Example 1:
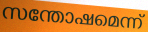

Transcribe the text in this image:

സന്തോഷമെന്ന്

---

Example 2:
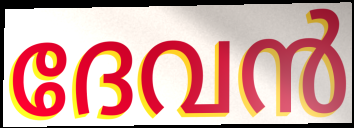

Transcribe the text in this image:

ദേവൻ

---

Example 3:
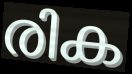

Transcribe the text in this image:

രിക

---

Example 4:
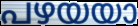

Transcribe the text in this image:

പഴയയാ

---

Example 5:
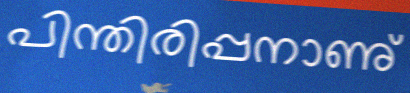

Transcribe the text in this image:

പിന്തിരിപ്പനാണു്